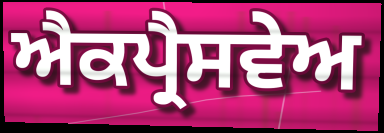
ਐਕਪ੍ਰੈਸਵੇਅ